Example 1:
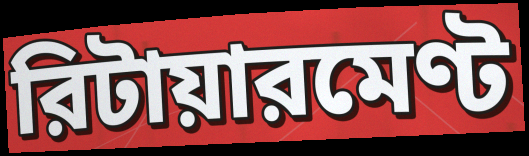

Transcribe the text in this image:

রিটায়ারমেণ্ট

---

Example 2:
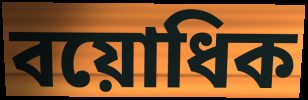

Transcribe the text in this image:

বয়োধিক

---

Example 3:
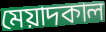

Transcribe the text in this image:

মেয়াদকাল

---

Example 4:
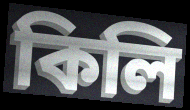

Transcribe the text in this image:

কিলি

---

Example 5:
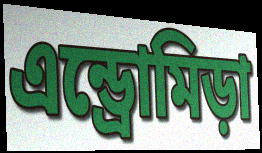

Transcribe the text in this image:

এন্ড্রোমিড়া